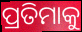
ପ୍ରତିମାକୁ